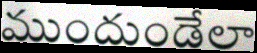
ముందుండేలా